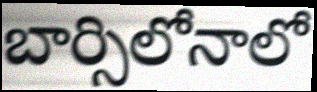
బార్సిలోనాలో